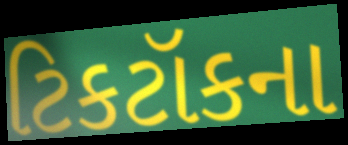
ટિકટૉકના